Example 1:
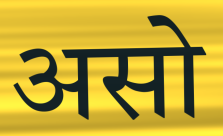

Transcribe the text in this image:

असो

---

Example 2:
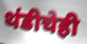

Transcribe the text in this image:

थंडीचेही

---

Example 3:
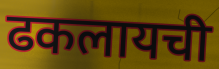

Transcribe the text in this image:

ढकलायची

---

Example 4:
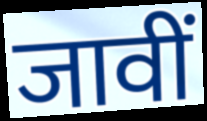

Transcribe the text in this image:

जावीं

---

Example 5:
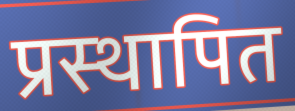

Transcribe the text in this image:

प्रस्थापित